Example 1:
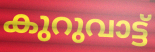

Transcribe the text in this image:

കുറുവാട്ട്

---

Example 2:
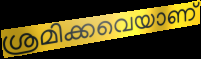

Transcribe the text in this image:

ശ്രമിക്കവെയാണ്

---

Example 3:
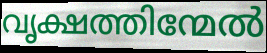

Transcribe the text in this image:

വൃക്ഷത്തിന്മേൽ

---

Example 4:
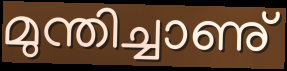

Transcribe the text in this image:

മുന്തിച്ചാണു്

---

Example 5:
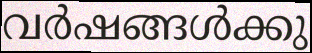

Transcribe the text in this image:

വർഷങ്ങൾക്കു